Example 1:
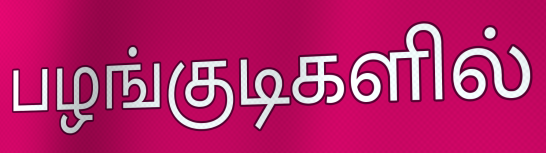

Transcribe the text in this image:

பழங்குடிகளில்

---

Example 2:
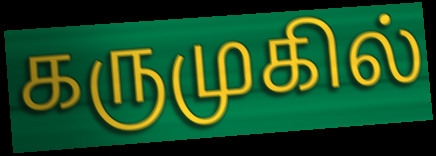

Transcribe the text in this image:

கருமுகில்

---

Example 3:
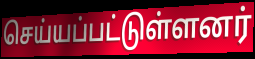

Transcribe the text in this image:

செய்யப்பட்டுள்ளனர்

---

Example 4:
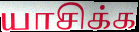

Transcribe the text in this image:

யாசிக்க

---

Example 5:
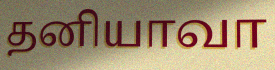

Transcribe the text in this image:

தனியாவா